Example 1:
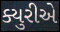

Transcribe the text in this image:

ક્યુરીએ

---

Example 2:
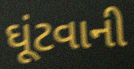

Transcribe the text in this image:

ઘૂંટવાની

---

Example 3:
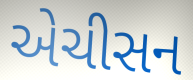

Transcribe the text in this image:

એચીસન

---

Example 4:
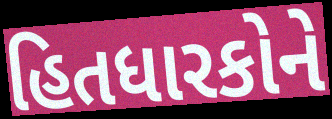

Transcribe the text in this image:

હિતધારકોને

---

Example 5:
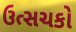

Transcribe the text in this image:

ઉત્સચકો